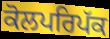
ਕੋਲਪਰਿਪੱਕ